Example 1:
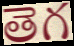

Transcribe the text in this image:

తెగ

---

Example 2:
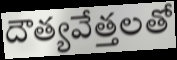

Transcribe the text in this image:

దౌత్యవేత్తలతో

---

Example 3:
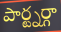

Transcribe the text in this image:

పార్ట్నర్గా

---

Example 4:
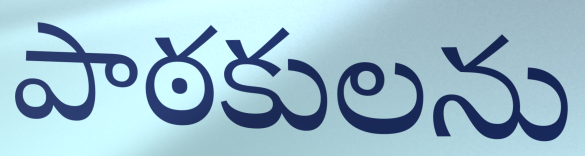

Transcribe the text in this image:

పాఠకులను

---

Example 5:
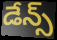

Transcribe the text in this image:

డేన్స్